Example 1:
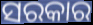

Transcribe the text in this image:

ସରକାର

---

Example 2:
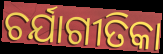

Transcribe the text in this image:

ଚର୍ଯାଗୀତିକା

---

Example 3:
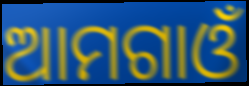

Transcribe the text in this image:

ଆମଗାଓଁ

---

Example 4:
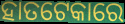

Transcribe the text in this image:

ହାତଟେକାରେ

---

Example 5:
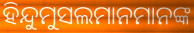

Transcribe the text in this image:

ହିନ୍ଦୁମୁସଲମାନମାନଙ୍କ